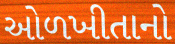
ઓળખીતાનો